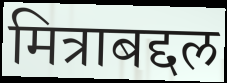
मित्राबद्दल